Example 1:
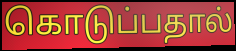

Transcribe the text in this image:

கொடுப்பதால்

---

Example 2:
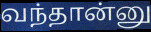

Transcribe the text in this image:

வந்தான்னு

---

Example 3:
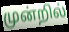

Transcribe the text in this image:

முன்றில்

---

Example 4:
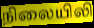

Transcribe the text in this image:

நிலையிலி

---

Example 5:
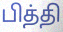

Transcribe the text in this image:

பித்தி